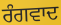
ਰੰਗਵਾਦ